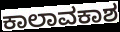
ಕಾಲಾವಕಾಶ